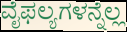
ವೈಫಲ್ಯಗಳನ್ನೆಲ್ಲ